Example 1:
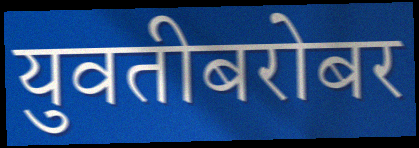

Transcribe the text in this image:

युवतीबरोबर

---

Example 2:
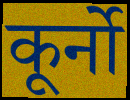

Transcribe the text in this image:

कूर्नो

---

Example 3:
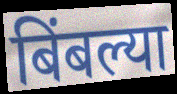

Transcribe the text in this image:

बिंबल्या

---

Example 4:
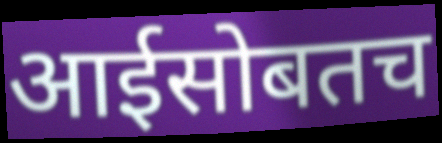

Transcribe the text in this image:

आईसोबतच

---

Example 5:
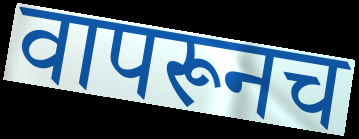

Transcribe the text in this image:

वापरूनच